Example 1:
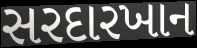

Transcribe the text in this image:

સરદારખાન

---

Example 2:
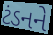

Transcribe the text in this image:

ટંડનને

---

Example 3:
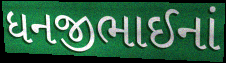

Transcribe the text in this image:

ધનજીભાઈનાં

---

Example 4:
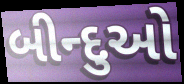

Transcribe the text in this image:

બીન્દુઓ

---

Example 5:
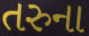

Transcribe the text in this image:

તરુના